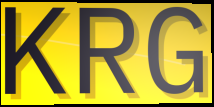
KRG